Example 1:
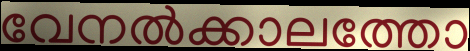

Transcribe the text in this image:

വേനൽക്കാലത്തോ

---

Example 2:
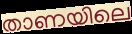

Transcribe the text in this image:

താണയിലെ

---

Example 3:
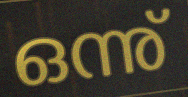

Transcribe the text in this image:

ഒന്നു്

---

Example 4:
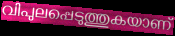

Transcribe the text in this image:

വിപുലപ്പെടുത്തുകയാണ്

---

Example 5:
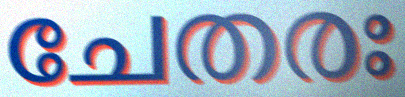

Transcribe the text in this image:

ചേതരഃ